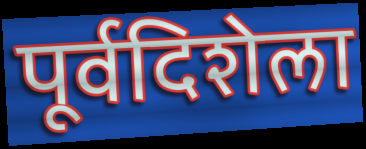
पूर्वदिशेला